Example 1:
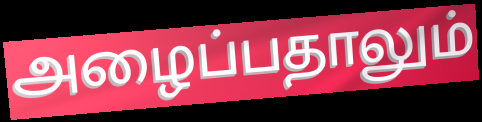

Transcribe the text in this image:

அழைப்பதாலும்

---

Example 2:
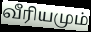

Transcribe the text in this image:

வீரியமும்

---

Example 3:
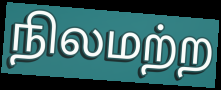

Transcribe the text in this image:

நிலமற்ற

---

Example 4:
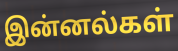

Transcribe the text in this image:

இன்னல்கள்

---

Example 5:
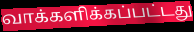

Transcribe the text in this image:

வாக்களிக்கப்பட்டது